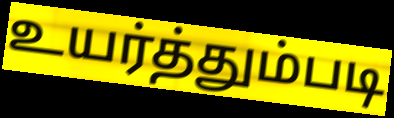
உயர்த்தும்படி